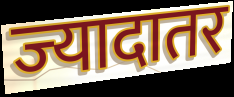
ज्‍यादातर